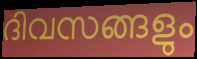
ദിവസങ്ങളും